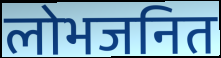
लोभजनित